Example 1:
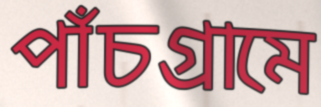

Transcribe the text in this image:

পাঁচগ্রামে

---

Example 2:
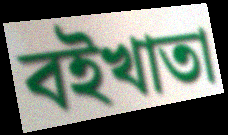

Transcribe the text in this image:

বইখাতা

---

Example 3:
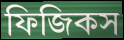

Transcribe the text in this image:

ফিজিকস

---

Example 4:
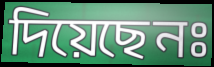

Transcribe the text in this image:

দিয়েছেনঃ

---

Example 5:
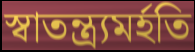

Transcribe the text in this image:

স্বাতন্ত্র্যমর্হতি